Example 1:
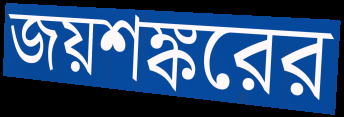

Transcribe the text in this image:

জয়শঙ্করের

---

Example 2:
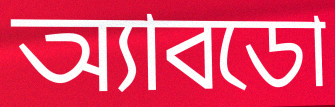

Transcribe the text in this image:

অ্যাবডো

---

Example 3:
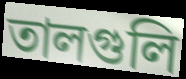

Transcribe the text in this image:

তালগুলি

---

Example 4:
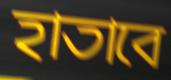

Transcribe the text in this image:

হাতাবে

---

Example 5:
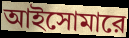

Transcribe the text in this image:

আইসোমারে